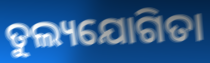
ତୁଲ୍ୟଯୋଗିତା